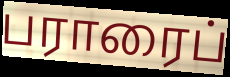
பராரைப்